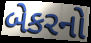
બેકરનો